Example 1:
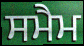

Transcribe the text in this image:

ਸਮੈਮ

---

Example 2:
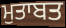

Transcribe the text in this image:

ਮੁਤਾਬਤ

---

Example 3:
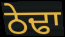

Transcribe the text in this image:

ਠੇਢਾ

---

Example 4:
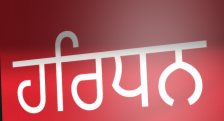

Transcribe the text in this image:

ਹਰਿਧਨ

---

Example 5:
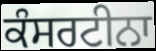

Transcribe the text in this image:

ਕੰਸਰਟੀਨਾ